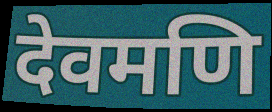
देवमणि